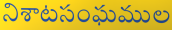
నిశాటసంఘముల